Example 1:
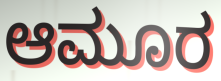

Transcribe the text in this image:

ಆಮೂರ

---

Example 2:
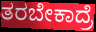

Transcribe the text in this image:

ತರಬೇಕಾದ್ರೆ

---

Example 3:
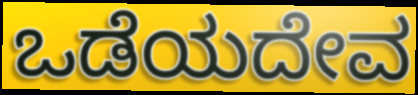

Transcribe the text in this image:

ಒಡೆಯದೇವ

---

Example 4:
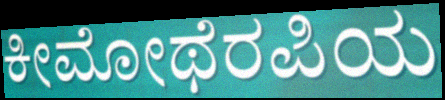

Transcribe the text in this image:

ಕೀಮೋಥೆರಪಿಯ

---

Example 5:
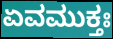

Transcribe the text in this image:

ಏವಮುಕ್ತಃ